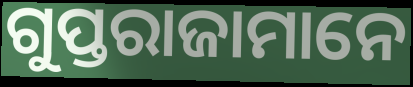
ଗୁପ୍ତରାଜାମାନେ